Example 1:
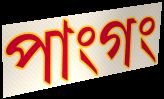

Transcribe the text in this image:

পাংগং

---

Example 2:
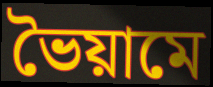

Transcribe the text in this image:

ভৈয়ামে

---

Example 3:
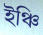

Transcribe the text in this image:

ইঞ্চি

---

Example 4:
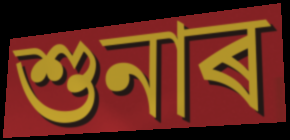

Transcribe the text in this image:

শুনাৰ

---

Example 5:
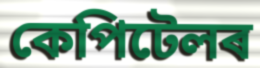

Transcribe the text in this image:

কেপিটেলৰ